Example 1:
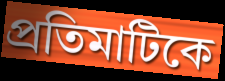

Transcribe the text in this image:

প্রতিমাটিকে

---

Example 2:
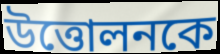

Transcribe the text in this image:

উত্তোলনকে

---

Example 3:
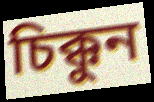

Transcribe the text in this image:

চিক্কুন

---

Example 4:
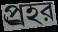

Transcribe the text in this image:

প্র্রহর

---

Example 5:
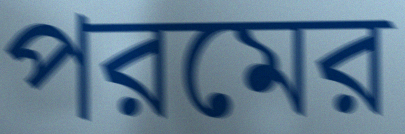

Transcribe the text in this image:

পরমের